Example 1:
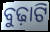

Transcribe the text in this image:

ବୁଢ଼ାଟି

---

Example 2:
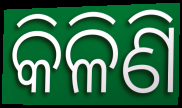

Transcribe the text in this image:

କିଳିଣି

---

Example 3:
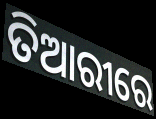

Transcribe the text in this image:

ତିଆରୀରେ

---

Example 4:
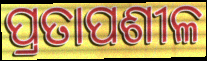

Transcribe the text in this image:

ପ୍ରତାପଶୀଳ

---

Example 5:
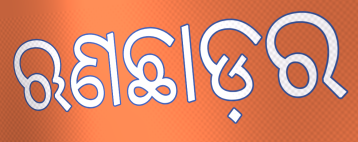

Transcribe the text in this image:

ଋଣଛାଡ଼ର